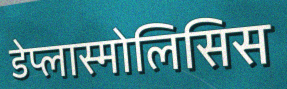
डेप्लास्मोलिसिस